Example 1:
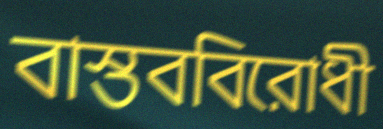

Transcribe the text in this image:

বাস্তববিরোধী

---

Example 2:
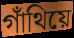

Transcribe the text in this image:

গাঁথিয়ে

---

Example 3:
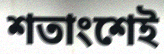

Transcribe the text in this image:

শতাংশেই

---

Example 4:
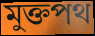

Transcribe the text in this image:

মুক্তপথ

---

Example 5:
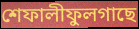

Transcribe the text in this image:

শেফালীফুলগাছে